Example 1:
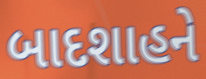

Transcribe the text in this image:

બાદશાહને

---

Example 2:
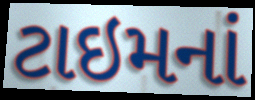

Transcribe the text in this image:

ટાઇમનાં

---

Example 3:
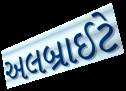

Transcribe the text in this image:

અલબ્રાઈટે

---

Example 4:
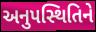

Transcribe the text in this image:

અનુપસ્થિતિને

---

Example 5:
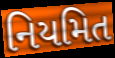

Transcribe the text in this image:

નિયમિત